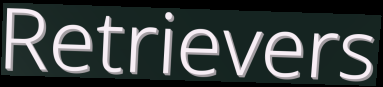
Retrievers